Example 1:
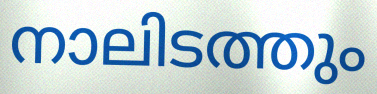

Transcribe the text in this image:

നാലിടത്തും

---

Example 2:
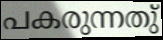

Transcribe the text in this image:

പകരുന്നതു്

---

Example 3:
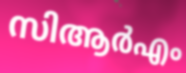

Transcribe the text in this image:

സിആർഎം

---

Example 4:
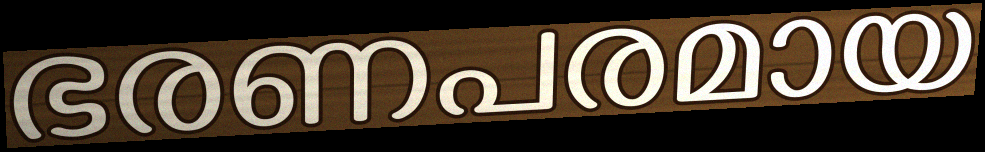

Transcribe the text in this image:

ഭരണപരമായ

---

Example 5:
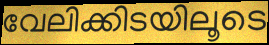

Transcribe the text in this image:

വേലിക്കിടയിലൂടെ